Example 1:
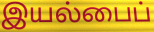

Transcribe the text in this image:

இயல்பைப்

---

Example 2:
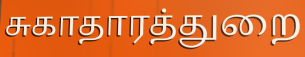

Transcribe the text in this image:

சுகாதாரத்துறை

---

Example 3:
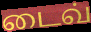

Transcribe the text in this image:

டைவ்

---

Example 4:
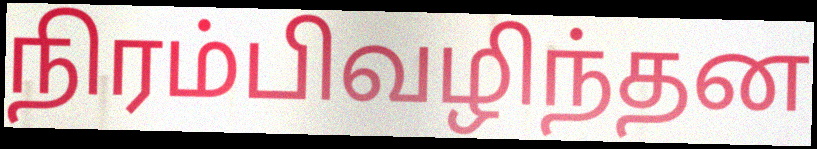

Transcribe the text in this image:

நிரம்பிவழிந்தன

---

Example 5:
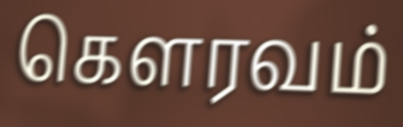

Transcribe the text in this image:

கெளரவம்